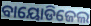
ବାୟୋଡିଜେଲ